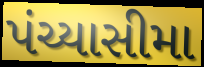
પંચ્યાસીમા